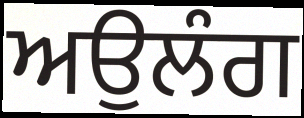
ਅਉਲੰਗ